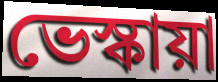
ভেস্কায়া